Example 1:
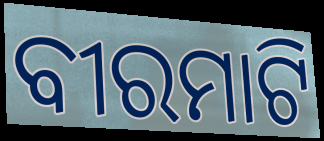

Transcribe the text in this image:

ବୀରମାଟି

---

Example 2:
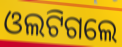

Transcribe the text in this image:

ଓଲଟିଗଲେ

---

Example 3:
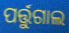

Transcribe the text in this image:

ପର୍ତ୍ତୁଗାଲ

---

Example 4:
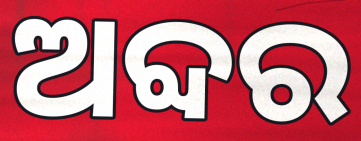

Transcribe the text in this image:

ଅବ୍ଦର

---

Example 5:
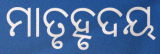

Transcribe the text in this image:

ମାତୃହୃଦୟ